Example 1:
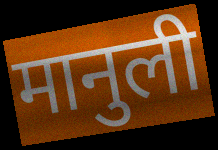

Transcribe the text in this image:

मानुली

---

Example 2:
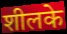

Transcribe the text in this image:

शीलके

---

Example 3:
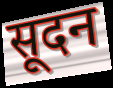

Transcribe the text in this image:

सूदन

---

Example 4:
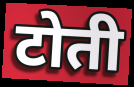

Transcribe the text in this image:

टोती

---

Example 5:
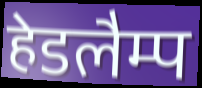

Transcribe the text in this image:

हेडलैम्प